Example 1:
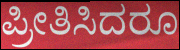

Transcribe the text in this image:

ಪ್ರೀತಿಸಿದರೂ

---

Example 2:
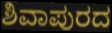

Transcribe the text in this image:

ಶಿವಾಪುರದ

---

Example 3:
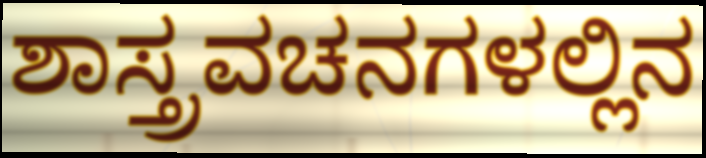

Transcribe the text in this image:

ಶಾಸ್ತ್ರವಚನಗಳಲ್ಲಿನ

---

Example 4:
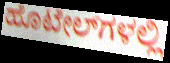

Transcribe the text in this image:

ಹೊಟೇಲ್‌ಗಳಲ್ಲಿ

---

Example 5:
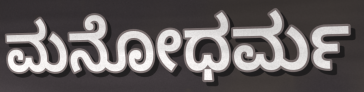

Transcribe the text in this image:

ಮನೋಧರ್ಮ